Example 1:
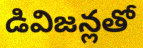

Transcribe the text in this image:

డివిజన్లతో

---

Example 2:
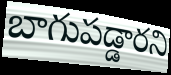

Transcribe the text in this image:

బాగుపడ్డారని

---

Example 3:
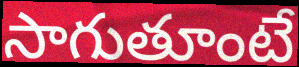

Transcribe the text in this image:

సాగుతూంటే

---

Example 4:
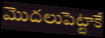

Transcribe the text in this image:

మొదలుపెట్టాకే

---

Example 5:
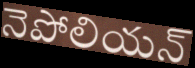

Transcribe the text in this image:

నెపోలియన్